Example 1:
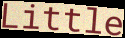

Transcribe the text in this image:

Little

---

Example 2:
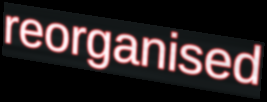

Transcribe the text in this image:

reorganised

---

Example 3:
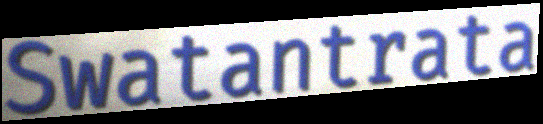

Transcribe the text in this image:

Swatantrata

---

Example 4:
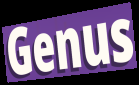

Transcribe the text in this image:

Genus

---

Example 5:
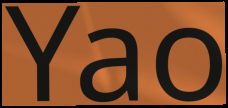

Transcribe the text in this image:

Yao